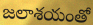
జలాశయంతో